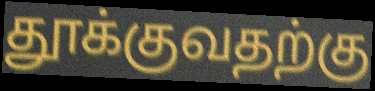
தூக்குவதற்கு